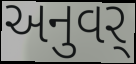
અનુવર્